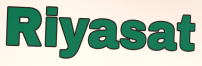
Riyasat